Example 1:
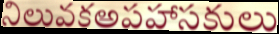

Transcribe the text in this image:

నిలువకఅపహాసకులు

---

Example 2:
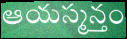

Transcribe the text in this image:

ఆయస్మన్తం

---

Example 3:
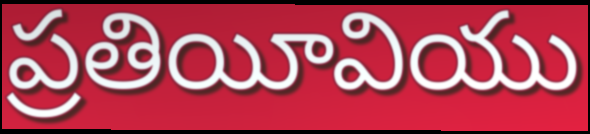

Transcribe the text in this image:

ప్రతియీవియు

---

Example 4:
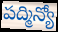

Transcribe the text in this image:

పద్మిన్యో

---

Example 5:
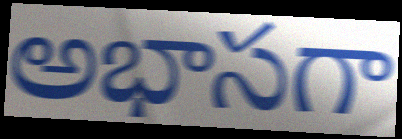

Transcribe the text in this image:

అభాసగా